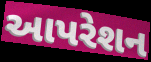
આપરેશન